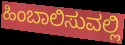
ಹಿಂಬಾಲಿಸುವಲ್ಲಿ